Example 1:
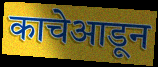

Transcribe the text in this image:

काचेआडून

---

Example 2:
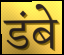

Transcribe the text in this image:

डंबे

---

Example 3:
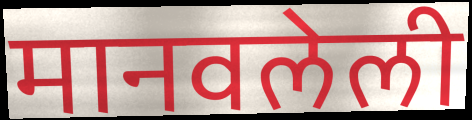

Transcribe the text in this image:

मानवलेली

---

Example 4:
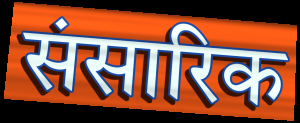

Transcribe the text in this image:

संसारिक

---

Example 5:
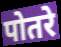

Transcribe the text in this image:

पोतरे